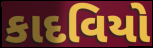
કાદવિયો